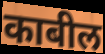
काबील